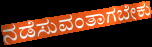
ನಡೆಸುವಂತಾಗಬೇಕು